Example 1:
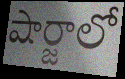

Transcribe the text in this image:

షార్జాలో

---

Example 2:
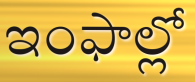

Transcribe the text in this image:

ఇంఫాల్లో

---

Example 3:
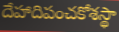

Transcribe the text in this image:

దేహాదిపంచకోశస్థా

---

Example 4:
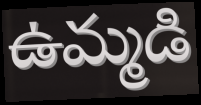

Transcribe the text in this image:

ఉమ్మడి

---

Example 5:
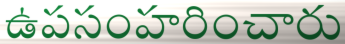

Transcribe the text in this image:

ఉపసంహరించారు